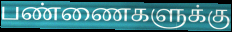
பண்ணைகளுக்கு